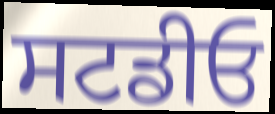
ਸਟਡੀਓ